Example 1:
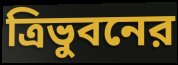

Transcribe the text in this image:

ত্রিভুবনের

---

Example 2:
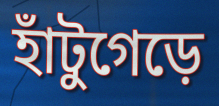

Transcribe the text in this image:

হাঁটুগেড়ে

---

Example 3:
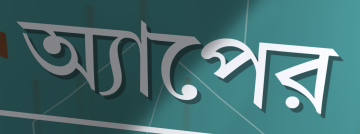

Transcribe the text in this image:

অ্যাপের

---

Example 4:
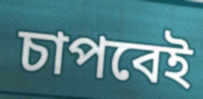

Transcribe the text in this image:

চাপবেই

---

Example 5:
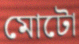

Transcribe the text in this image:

মোটো